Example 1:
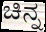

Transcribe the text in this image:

ಚಿನ್ನ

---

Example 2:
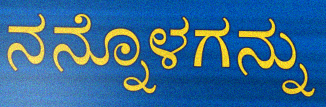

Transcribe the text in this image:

ನನ್ನೊಳಗನ್ನು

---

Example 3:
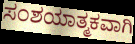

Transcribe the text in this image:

ಸಂಶಯಾತ್ಮಕವಾಗಿ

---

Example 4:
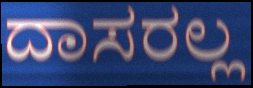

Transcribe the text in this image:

ದಾಸರಲ್ಲ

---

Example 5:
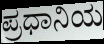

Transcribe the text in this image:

ಪ್ರಧಾನಿಯ